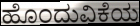
ಹೊಂದುವಿಕೆಯ